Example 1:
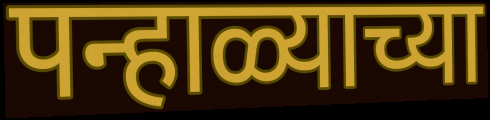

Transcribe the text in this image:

पन्हाळ्याच्या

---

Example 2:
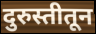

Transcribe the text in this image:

दुरुस्तीतून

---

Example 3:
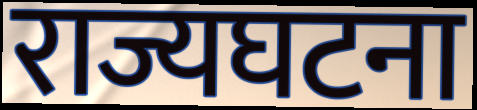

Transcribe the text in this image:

राज्यघटना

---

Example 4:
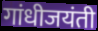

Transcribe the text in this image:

गांधीजयंती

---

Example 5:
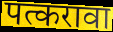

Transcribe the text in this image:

पत्करावा